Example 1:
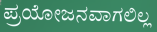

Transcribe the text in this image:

ಪ್ರಯೋಜನವಾಗಲಿಲ್ಲ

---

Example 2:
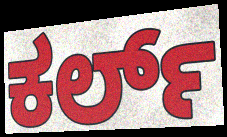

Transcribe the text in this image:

ಕರ್ಲ್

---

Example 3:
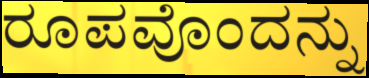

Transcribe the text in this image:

ರೂಪವೊಂದನ್ನು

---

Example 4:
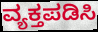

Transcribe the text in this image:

ವ್ಯಕ್ತಪಡಿಸಿ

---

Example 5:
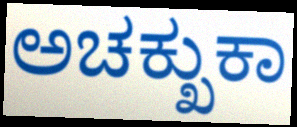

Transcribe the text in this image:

ಅಚಕ್ಖುಕಾ